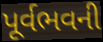
પૂર્વભવની